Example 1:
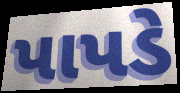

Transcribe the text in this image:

પાપડે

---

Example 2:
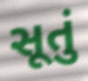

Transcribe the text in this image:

સૂતું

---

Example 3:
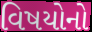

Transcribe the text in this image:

વિષયોનો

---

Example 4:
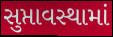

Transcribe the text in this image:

સુપ્તાવસ્થામાં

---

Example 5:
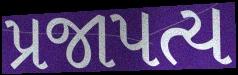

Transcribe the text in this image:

પ્રજાપત્ય